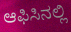
ಆಫಿಸಿನಲ್ಲಿ